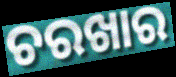
ଚରଖାର